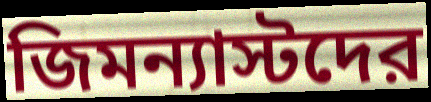
জিমন্যাস্টদের